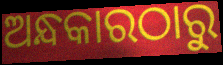
ଅନ୍ଧକାରଠାରୁ